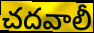
చదవాలీ